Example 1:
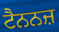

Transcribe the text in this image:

ਟੈਨਨਜ਼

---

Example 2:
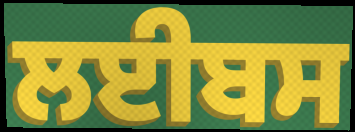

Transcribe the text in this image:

ਲਈਬਸ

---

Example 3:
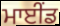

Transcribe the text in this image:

ਮਾਈਂਡ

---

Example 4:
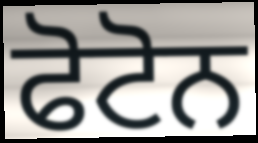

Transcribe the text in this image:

ਫੋਟੋਨ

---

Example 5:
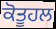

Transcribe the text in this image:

ਕੋਤੂਹਲ